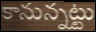
కానున్నట్టు